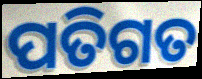
ପତିଗତ